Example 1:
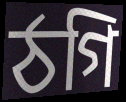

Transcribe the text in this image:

ঠগি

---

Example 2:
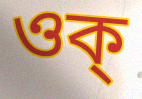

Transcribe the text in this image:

ওক্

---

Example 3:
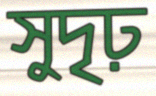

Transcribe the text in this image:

সুদৃঢ়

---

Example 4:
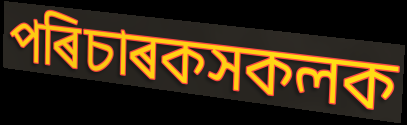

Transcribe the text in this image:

পৰিচাৰকসকলক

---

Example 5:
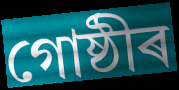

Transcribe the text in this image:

গোষ্ঠীৰ